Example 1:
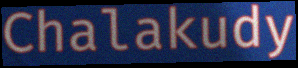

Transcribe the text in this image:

Chalakudy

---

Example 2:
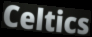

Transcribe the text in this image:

Celtics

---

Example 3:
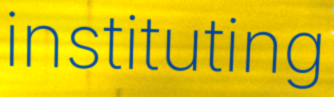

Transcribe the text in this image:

instituting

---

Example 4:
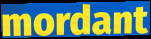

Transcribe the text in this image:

mordant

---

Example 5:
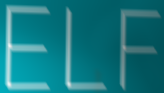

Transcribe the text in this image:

ELF